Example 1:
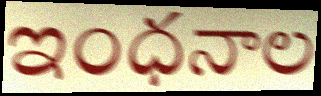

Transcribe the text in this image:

ఇంధనాల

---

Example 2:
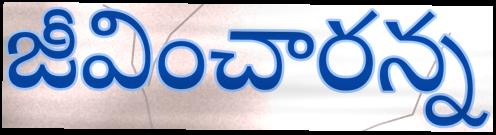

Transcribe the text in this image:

జీవించారన్న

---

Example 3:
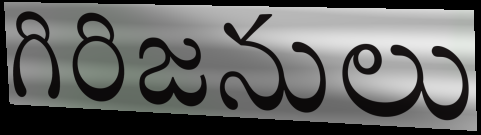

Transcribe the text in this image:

గిరిజనులు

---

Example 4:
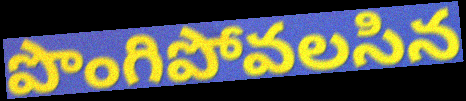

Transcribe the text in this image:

పొంగిపోవలసిన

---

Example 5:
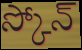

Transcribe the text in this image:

స్కోన్